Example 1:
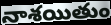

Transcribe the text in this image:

నాశయితుం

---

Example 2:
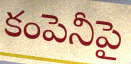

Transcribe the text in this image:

కంపెనీపై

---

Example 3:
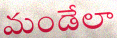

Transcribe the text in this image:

మండేలా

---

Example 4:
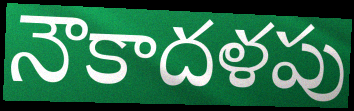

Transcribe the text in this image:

నౌకాదళపు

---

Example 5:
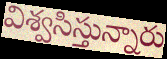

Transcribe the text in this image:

విశ్వసిస్తున్నారు